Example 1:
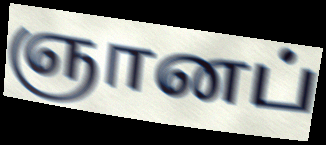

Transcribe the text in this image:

ஞானப்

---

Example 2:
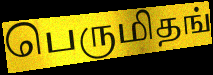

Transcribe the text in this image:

பெருமிதங்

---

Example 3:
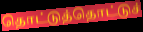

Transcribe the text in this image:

தொட்டுத்தொட்டுச்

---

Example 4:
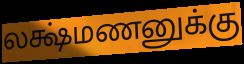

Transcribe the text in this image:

லக்ஷ்மணனுக்கு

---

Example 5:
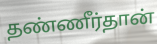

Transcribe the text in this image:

தண்ணீர்தான்